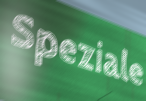
Speziale